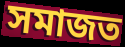
সমাজত